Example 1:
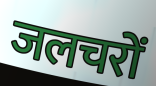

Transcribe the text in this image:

जलचरों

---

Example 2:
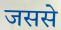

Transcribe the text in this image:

जससे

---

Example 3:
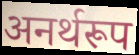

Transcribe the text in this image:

अनर्थरूप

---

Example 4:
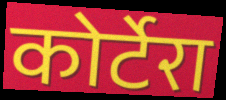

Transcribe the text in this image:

कोर्टेरा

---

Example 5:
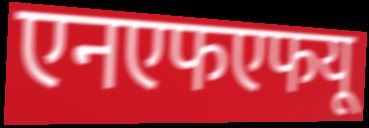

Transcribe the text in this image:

एनएफएफयू